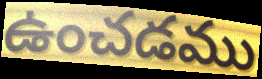
ఉంచడము